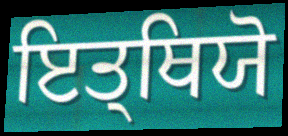
ਇਤ੍ਥਿਯੋ